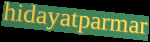
hidayatparmar